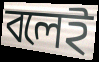
বলেই